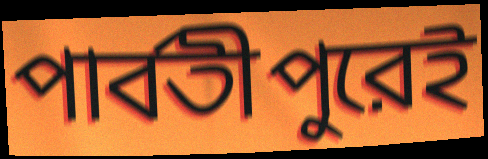
পার্বতীপুরেই